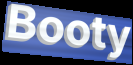
Booty